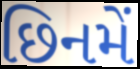
છિનમેં